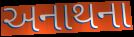
અનાથના